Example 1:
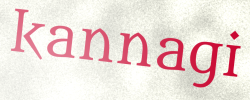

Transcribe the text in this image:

kannagi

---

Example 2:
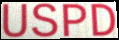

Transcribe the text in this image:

USPD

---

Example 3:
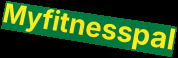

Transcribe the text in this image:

Myfitnesspal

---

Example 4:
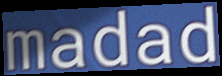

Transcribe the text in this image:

madad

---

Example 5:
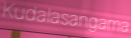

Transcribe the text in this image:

Kudalasangama